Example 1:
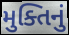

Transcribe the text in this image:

મુક્તિનું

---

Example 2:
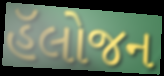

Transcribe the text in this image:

હૅલોજન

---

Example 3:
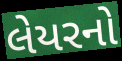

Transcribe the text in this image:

લેયરનો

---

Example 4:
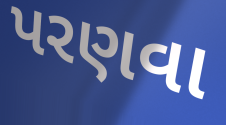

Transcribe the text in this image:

પરણવા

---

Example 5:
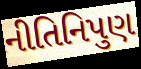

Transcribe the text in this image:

નીતિનિપુણ